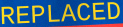
REPLACED